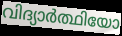
വിദ്യാർത്ഥിയോ